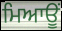
ਮਿਆਊਂ